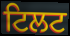
ਟਿਲਟ